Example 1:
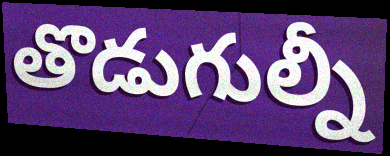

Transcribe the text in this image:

తొడుగుల్నీ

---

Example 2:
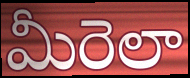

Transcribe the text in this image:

మీరెలా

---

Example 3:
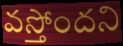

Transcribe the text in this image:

వస్తోందని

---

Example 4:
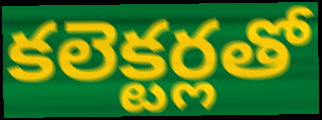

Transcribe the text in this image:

కలెక్టర్లతో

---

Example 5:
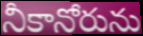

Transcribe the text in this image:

నీకానోరును